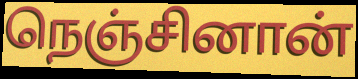
நெஞ்சினான்